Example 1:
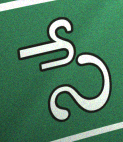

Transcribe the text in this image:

సే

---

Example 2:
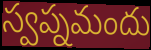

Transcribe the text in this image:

స్వప్నమందు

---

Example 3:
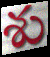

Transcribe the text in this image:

శు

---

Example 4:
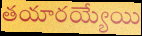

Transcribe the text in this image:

తయారయ్యేయి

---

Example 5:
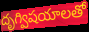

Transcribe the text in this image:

దృగ్విషయాలతో